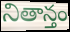
నితాన్తం